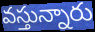
వస్తున్నారు